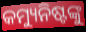
କମ୍ୟୁନିଷ୍ଟଙ୍କୁ